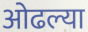
ओढल्या